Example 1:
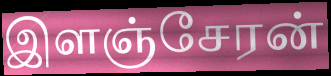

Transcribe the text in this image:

இளஞ்சேரன்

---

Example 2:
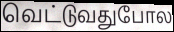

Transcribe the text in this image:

வெட்டுவதுபோல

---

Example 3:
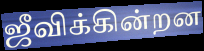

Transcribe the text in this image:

ஜீவிக்கின்றன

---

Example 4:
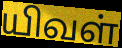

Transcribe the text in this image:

யிவள்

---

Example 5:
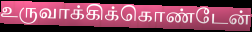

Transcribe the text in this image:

உருவாக்கிக்கொண்டேன்